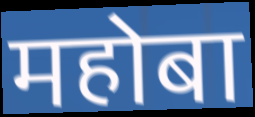
महोबा